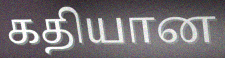
கதியான